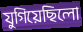
যুগিয়েছিলো